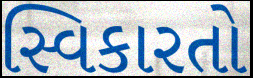
સ્વિકારતો